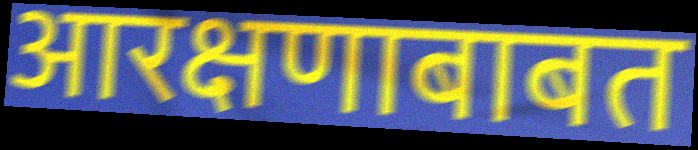
आरक्षणाबाबत